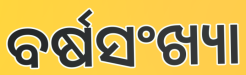
ବର୍ଷସଂଖ୍ୟା